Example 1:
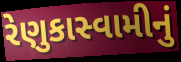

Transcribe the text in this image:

રેણુકાસ્વામીનું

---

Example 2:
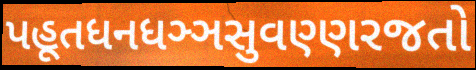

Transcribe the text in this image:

પહૂતધનધઞ્ઞસુવણ્ણરજતો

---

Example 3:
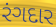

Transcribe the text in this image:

રંગદાર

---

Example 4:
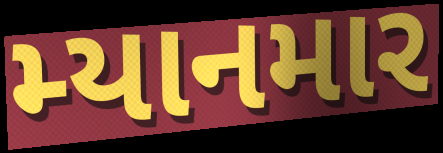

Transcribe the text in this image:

મ્યાનમાર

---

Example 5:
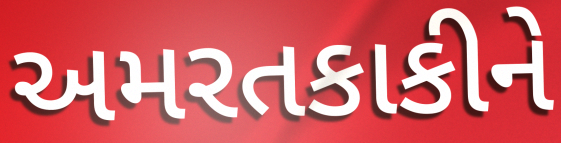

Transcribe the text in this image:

અમરતકાકીને